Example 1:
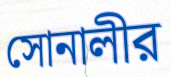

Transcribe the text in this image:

সোনালীর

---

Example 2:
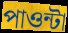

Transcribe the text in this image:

পাওন্টা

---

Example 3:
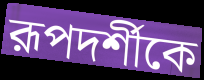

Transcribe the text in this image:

রূপদর্শীকে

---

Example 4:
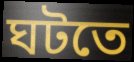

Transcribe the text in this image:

ঘটতে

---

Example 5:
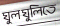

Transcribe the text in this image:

ঘুলঘুলিতে